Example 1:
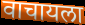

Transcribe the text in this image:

वाचायला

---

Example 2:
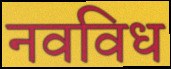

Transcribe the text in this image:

नवविध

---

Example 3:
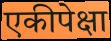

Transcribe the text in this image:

एकीपेक्षा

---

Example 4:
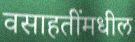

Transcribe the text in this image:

वसाहतींमधील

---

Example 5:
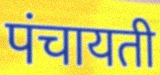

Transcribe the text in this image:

पंचायती